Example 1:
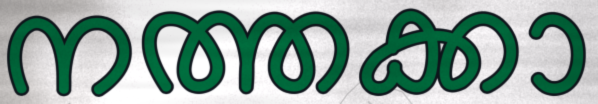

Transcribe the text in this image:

നത്തക്കാ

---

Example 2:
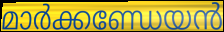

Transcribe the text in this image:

മാർക്കണ്ഡേയൻ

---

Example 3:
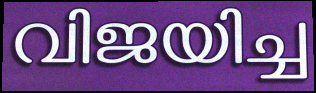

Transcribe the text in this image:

വിജയിച്ച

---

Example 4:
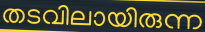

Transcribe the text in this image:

തടവിലായിരുന്ന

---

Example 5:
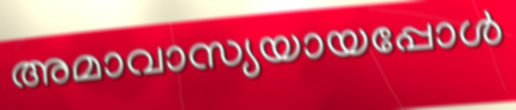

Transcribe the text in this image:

അമാവാസ്യയായപ്പോൾ